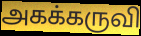
அகக்கருவி